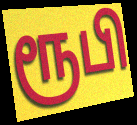
ரூபி